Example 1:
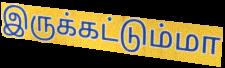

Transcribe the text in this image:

இருக்கட்டும்மா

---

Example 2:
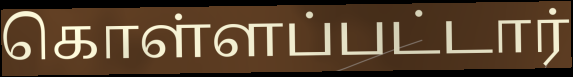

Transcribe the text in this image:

கொள்ளப்பட்டார்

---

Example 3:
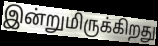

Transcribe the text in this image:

இன்றுமிருக்கிறது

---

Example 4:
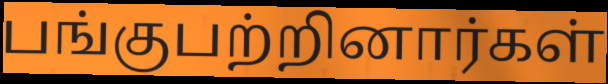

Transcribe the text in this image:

பங்குபற்றினார்கள்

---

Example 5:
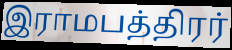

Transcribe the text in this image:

இராமபத்திரர்